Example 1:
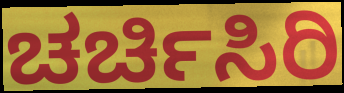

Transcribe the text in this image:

ಚರ್ಚಿಸಿರಿ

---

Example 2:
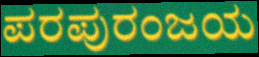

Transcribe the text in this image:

ಪರಪುರಂಜಯ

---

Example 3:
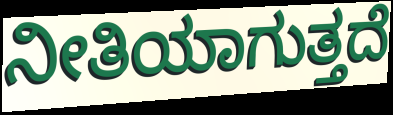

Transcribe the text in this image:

ನೀತಿಯಾಗುತ್ತದೆ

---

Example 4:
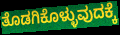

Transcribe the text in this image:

ತೊಡಗಿಕೊಳ್ಳುವುದಕ್ಕೆ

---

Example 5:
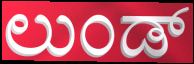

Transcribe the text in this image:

ಲುಂಡ್